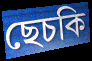
ছেচকি